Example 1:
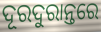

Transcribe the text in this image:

ଦୂରଦୁରାନ୍ତରେ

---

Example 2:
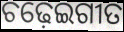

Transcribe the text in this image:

ଚଢ଼େଇଗୀତ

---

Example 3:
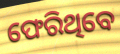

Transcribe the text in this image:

ଫେରିଥିବେ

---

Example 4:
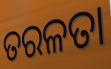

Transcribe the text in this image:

ତରଳତା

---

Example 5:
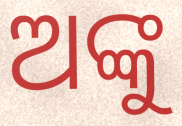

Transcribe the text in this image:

ଅଙ୍କୁ